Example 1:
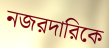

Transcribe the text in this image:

নজরদারিকে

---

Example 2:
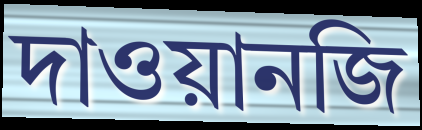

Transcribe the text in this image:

দাওয়ানজি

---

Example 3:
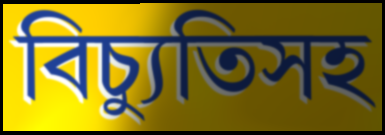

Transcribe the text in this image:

বিচ্যুতিসহ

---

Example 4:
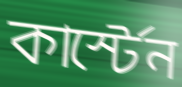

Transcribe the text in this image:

কার্স্টেন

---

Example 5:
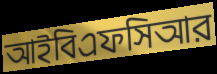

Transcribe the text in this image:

আইবিএফসিআর